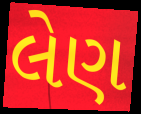
લેણ